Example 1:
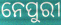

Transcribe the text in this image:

ନେପୁରୀ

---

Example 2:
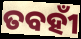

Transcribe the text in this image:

ତବହୀଁ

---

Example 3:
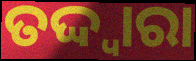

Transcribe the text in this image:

ତଦ୍ଦ୍ଵାରା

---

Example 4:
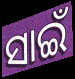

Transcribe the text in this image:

ସାଇଁ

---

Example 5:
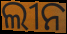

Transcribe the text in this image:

ଲୀନ